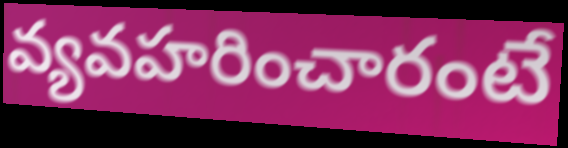
వ్యవహరించారంటే